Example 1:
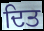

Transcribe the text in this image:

ਦਿਤ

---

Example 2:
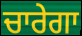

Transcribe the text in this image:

ਚਾਰੇਗਾ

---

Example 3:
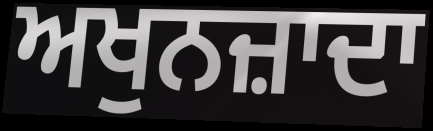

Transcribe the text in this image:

ਅਖੁਨਜ਼ਾਦਾ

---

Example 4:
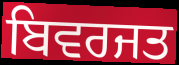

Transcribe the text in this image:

ਬਿਵਰਜਤ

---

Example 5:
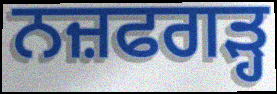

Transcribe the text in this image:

ਨਜ਼ਫਗੜ੍ਹ